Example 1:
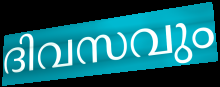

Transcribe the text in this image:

ദിവസവും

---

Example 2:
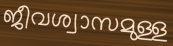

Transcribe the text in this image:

ജീവശ്വാസമുള്ള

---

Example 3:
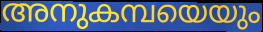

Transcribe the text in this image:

അനുകമ്പയെയും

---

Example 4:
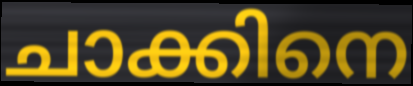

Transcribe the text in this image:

ചാക്കിനെ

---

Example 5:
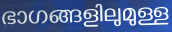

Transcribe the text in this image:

ഭാഗങ്ങളിലുമുള്ള